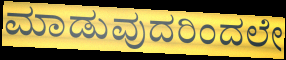
ಮಾಡುವುದರಿಂದಲೇ